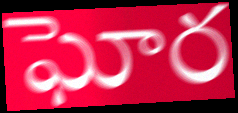
ఘోర